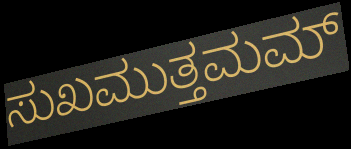
ಸುಖಮುತ್ತಮಮ್